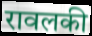
रावलकी